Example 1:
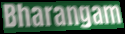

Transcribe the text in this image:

Bharangam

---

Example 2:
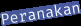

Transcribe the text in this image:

Peranakan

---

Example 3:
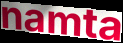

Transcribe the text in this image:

namta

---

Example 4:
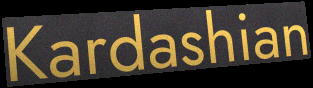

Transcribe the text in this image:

Kardashian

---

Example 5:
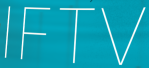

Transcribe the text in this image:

IFTV